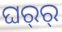
ଘର୍‍ର୍